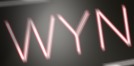
WYN